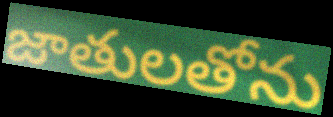
జాతులతోను